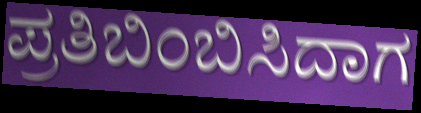
ಪ್ರತಿಬಿಂಬಿಸಿದಾಗ